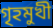
গৃহমুখী